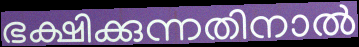
ഭക്ഷിക്കുന്നതിനാൽ